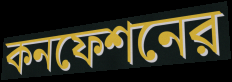
কনফেশনের